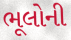
ભૂલોની